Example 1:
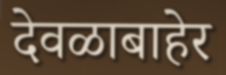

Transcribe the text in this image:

देवळाबाहेर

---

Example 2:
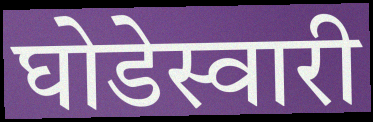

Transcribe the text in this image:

घोडेस्वारी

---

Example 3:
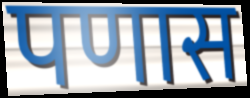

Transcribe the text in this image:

पणास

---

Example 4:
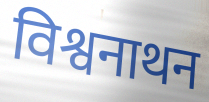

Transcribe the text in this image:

विश्वनाथन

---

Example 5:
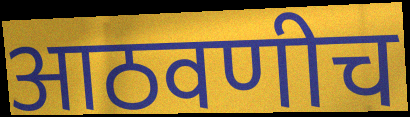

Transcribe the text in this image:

आठवणीच